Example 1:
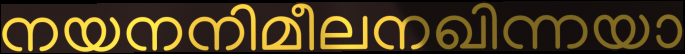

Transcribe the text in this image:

നയനനിമീലനഖിന്നയാ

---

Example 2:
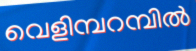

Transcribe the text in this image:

വെളിമ്പറമ്പിൽ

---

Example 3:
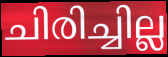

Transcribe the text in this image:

ചിരിച്ചില്ല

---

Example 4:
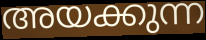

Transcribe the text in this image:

അയക്കുന്ന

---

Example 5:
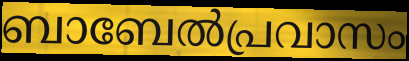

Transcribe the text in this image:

ബാബേൽപ്രവാസം